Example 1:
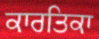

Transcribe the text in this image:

ਕਾਰਤਿਕਾ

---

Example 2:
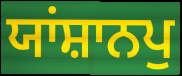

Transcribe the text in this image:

ਯਾਂਸ਼ਾਨਪੁ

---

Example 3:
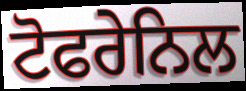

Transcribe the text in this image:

ਟੋਫਰੇਨਿਲ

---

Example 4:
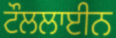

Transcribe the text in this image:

ਟੌਲਲਾਈਨ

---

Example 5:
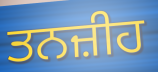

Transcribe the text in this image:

ਤਨਜ਼ੀਹ